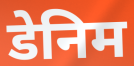
डेनिम